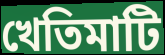
খেতিমাটি